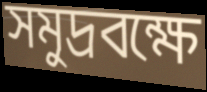
সমুদ্রবক্ষে